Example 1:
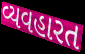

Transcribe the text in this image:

વ્યવહારત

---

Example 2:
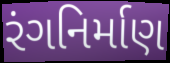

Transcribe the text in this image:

રંગનિર્માણ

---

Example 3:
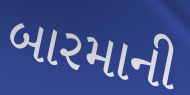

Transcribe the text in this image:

બારમાની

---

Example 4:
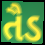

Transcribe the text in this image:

તૈડ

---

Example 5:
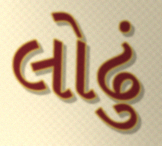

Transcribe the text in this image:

લોઢું